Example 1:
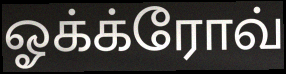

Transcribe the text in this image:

ஓக்க்ரோவ்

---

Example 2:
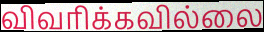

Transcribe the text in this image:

விவரிக்கவில்லை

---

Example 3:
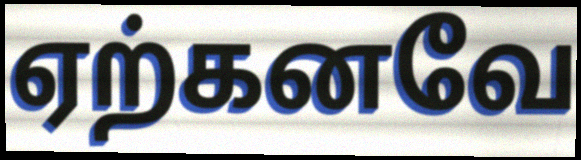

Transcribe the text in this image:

ஏற்கனவே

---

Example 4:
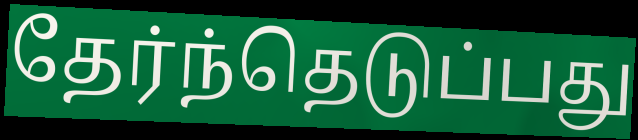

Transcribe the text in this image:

தேர்ந்தெடுப்பது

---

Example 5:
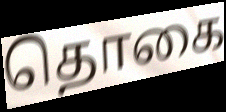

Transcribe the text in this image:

தொகை